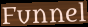
Funnel